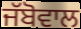
ਜੱਬੋਵਾਲ